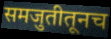
समजुतीतूनच